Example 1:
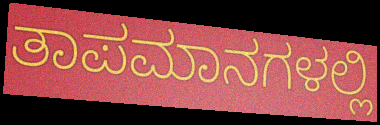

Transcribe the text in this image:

ತಾಪಮಾನಗಳಲ್ಲಿ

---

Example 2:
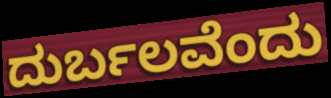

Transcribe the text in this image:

ದುರ್ಬಲವೆಂದು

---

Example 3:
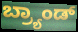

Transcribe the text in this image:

ಬ್ರ್ಯಾಂಡ್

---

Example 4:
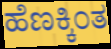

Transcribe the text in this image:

ಹೆಣಕ್ಕಿಂತ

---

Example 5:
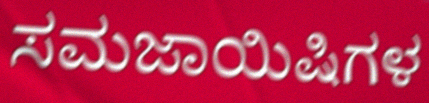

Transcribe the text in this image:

ಸಮಜಾಯಿಷಿಗಳ